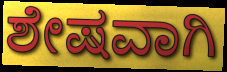
ಶೇಷವಾಗಿ